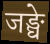
जङ्घे